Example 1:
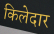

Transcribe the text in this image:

किलेदार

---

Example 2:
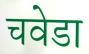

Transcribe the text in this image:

चवेडा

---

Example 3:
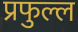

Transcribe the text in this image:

प्रफुल्ल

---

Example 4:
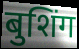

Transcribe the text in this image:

बुशिंग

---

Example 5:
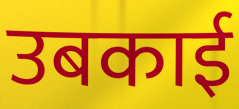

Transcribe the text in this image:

उबकाई